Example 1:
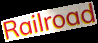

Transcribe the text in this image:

Railroad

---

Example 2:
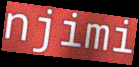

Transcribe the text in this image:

njimi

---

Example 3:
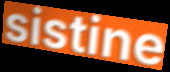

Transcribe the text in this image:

sistine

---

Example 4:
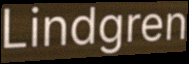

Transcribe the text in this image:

Lindgren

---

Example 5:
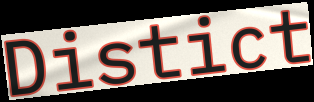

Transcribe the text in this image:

Distict